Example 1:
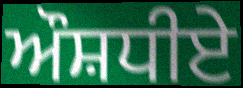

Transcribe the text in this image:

ਔਸ਼ਧੀਏ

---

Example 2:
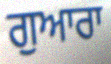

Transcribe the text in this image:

ਗੁਆਰਾ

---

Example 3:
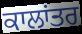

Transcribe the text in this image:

ਕਾਲਾਂਤਰ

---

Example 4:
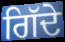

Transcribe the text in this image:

ਗਿੱਦੇ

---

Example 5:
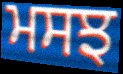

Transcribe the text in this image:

ਮਸਝ